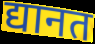
द्यानत